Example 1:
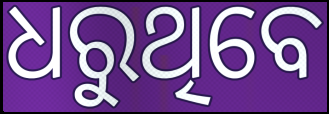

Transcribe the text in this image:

ଧରୁଥିବେ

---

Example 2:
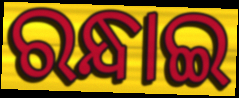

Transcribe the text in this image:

ରନ୍ଧାଇ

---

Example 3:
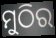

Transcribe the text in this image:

ମୁଠିର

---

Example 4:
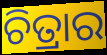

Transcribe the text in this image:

ଚିତ୍ରାର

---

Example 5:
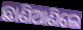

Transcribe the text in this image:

ଛାଣିଆଣିଲେ